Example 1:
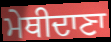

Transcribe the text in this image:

ਮੇਥੀਦਾਣਾ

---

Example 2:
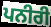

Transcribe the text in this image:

ਪਨੀਰੀ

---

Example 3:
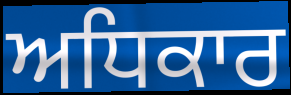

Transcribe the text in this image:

ਅਧਿਕਾਰ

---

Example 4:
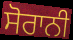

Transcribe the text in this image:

ਸੋਰਾਨੀ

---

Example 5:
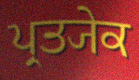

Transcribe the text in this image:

ਪ੍ਰਤ੍ਯੇਕ